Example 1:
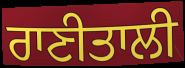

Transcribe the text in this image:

ਰਾਣੀਤਾਲੀ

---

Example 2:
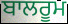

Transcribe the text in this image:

ਬਾਲਰੂਮ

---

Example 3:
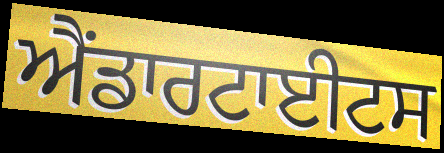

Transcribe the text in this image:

ਐਂਡਾਰਟਾਈਟਸ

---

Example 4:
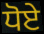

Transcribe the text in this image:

ਧੋਏ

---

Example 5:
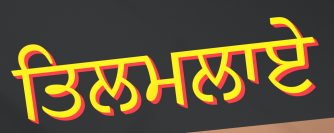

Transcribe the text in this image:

ਤਿਲਮਲਾਏ